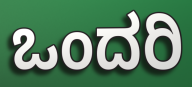
ಒಂದರಿ